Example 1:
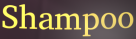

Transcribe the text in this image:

Shampoo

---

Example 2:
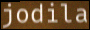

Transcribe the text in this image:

jodila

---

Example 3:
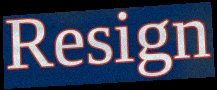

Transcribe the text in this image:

Resign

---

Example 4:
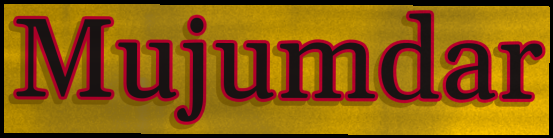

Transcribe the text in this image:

Mujumdar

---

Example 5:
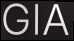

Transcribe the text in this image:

GIA